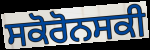
ਸਕੋਰੋਨਸਕੀ